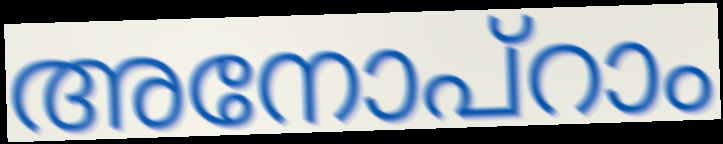
അനോപ്റാം